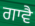
ਗਾਵੈ